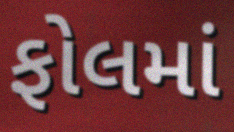
ફોલમાં